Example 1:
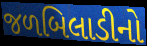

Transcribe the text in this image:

જળબિલાડીનો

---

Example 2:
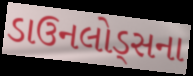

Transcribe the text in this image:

ડાઉનલોડ્સના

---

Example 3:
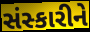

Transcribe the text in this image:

સંસ્કારીને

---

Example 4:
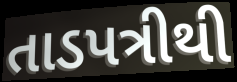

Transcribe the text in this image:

તાડપત્રીથી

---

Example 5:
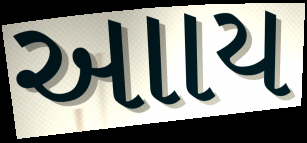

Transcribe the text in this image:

આાય